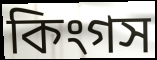
কিংগস